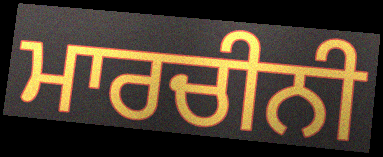
ਮਾਰਚੀਨੀ